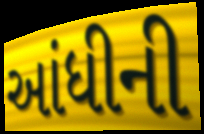
આંધીની